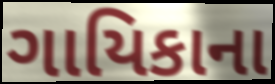
ગાયિકાના